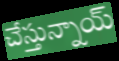
చేస్తున్నాయ్